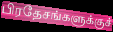
பிரதேசங்களுக்குச்